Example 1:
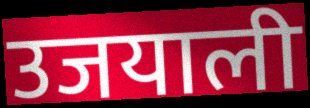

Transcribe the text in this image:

उजयाली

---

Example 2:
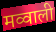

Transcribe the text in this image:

मव्वाली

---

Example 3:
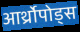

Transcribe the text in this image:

आर्थ्रोपोड्स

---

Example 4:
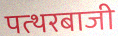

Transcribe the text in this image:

पत्‍थरबाजी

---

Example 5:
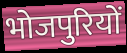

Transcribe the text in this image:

भोजपुरियों